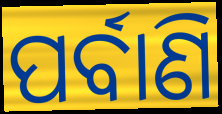
ପର୍ବାଣି